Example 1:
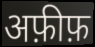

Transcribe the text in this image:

अफ़ीफ़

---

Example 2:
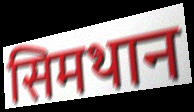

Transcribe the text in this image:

सिमथान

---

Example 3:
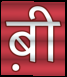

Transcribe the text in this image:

ब़ी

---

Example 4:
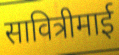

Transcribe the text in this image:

सावित्रीमाई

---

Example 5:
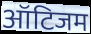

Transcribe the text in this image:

ऑटिजम